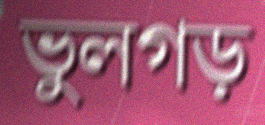
ভুলগড়